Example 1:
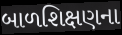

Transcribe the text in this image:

બાળશિક્ષણના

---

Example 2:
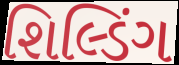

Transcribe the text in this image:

શિલ્ડિંગ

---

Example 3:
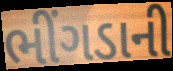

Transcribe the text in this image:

ભીંગડાની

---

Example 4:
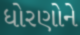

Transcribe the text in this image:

ધોરણોને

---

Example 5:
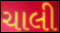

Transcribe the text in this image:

ચાલી